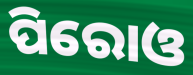
ପିରୋଓ